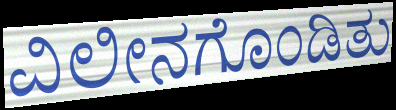
ವಿಲೀನಗೊಂಡಿತು